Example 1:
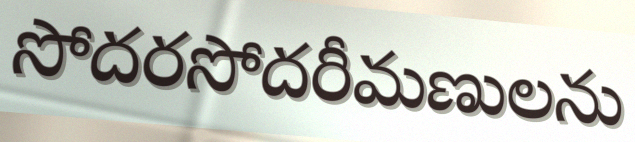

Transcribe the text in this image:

సోదరసోదరీమణులను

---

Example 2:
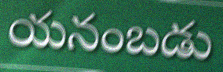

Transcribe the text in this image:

యనంబడు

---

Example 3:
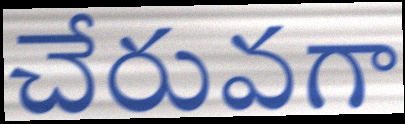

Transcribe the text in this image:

చేరువగా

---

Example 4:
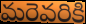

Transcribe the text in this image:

మరెవరికి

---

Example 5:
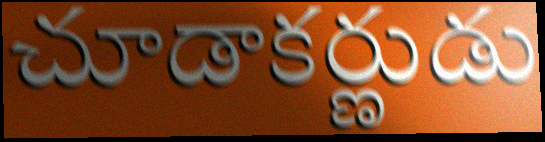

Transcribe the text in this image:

చూడాకర్ణుడు